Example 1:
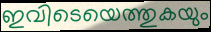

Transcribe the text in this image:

ഇവിടെയെത്തുകയും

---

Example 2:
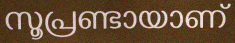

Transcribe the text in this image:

സൂപ്രണ്ടായാണ്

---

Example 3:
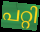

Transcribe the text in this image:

പറ്റി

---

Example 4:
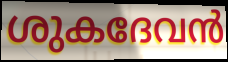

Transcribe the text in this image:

ശുകദേവൻ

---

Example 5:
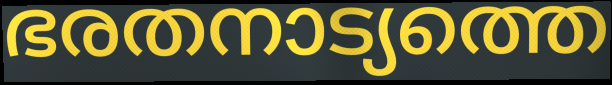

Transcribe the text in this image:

ഭരതനാട്യത്തെ